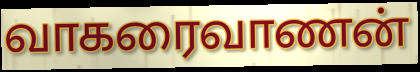
வாகரைவாணன்